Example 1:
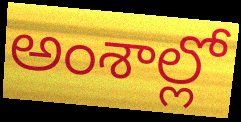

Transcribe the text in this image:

అంశాల్లో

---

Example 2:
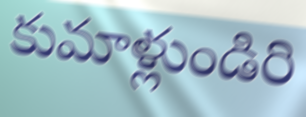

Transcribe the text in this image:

కుమాళ్లుండిరి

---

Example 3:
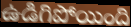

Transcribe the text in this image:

ఉడిగిపోయింది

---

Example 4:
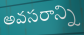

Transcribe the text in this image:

అవసరాన్ని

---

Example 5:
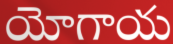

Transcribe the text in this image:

యోగాయ